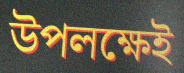
উপলক্ষেই